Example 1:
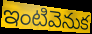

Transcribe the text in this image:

ఇంటివెనుక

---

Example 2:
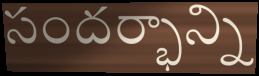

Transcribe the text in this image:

సందర్భాన్ని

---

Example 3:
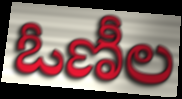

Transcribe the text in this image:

ఓణీల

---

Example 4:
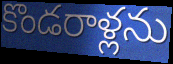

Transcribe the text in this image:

కొండరాళ్లను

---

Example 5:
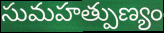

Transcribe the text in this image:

సుమహత్పుణ్యం